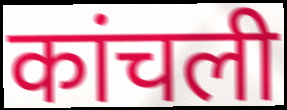
कांचली